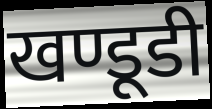
खण्डूडी